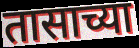
तासाच्या